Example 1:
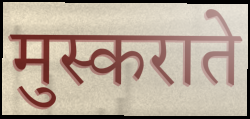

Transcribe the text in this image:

मुस्कराते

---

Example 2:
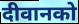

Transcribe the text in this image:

दीवानको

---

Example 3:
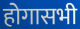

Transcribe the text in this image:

होगासभी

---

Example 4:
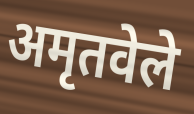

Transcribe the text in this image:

अमृतवेले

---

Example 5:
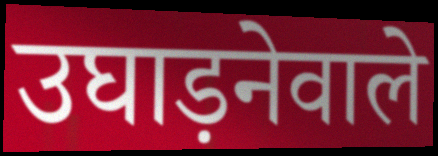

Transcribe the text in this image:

उघाड़नेवाले